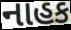
નાહક